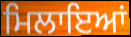
ਮਿਲਾਇਆਂ